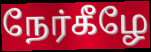
நேர்கீழே